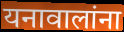
यनावालांना